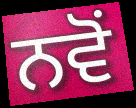
ਨਵੋਂ